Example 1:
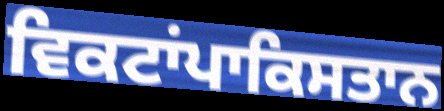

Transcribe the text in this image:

ਵਿਕਟਾਂਪਾਕਿਸਤਾਨ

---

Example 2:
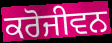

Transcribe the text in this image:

ਕਰੋਜੀਵਨ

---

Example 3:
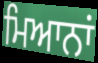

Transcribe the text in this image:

ਮਿਆਨਾਂ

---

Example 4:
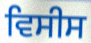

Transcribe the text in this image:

ਵਿਸੀਸ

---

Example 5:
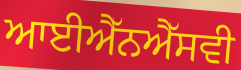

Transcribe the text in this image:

ਆਈਐੱਨਐੱਸਵੀ